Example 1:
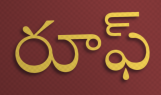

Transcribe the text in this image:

రూఫ్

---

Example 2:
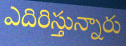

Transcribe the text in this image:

ఎదిరిస్తున్నారు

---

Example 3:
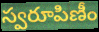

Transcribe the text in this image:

స్వరూపిణీం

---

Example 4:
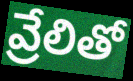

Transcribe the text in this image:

వ్రేలితో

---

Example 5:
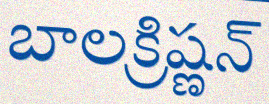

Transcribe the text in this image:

బాలక్రిష్ణన్